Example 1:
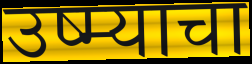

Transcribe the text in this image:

उष्म्याचा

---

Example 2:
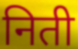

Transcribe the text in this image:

निती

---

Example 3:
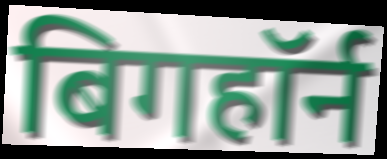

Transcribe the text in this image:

बिगहॉर्न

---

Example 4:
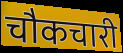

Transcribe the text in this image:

चौकचारी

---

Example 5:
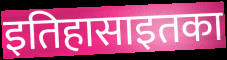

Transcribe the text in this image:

इतिहासाइतका